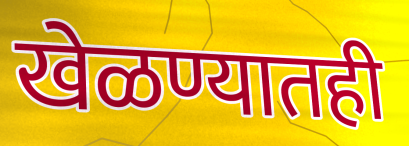
खेळण्यातही